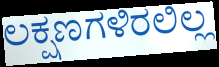
ಲಕ್ಷಣಗಳಿರಲಿಲ್ಲ